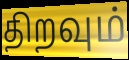
திறவும்